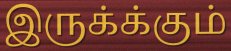
இருக்க்கும்